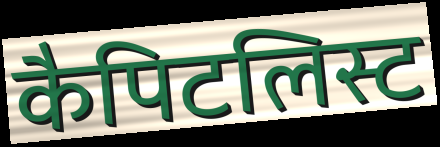
कैपिटलिस्ट